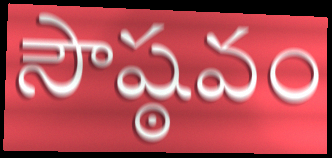
సౌష్ఠవం